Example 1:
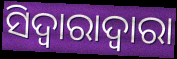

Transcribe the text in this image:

ସିଦ୍ୱାରାଦ୍ୱାରା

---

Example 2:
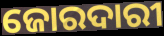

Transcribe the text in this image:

ଜୋରଦାରୀ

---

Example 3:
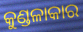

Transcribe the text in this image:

କୁଣ୍ଡଳାକାର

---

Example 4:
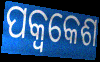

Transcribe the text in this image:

ପକ୍ଵକେଶ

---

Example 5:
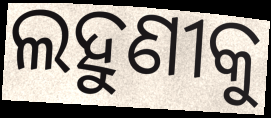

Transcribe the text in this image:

ଲହୁଣୀକୁ